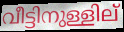
വീട്ടിനുള്ളില്